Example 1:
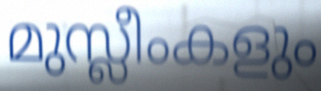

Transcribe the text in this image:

മുസ്ലീംകളും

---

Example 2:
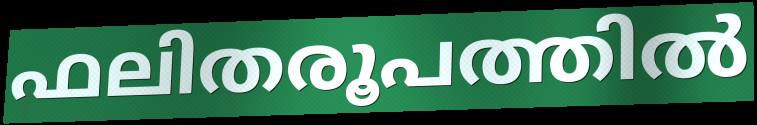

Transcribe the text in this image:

ഫലിതരൂപത്തിൽ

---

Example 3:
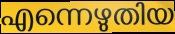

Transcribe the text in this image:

എന്നെഴുതിയ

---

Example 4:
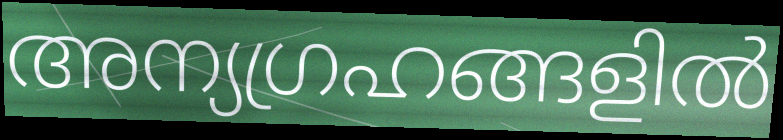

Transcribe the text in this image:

അന്യഗ്രഹങ്ങളിൽ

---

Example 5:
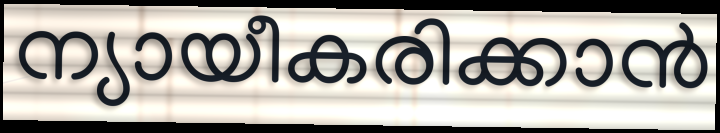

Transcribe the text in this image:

ന്യായീകരിക്കാൻ